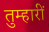
तुम्हारीं